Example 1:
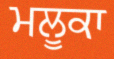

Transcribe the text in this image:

ਮਲੂਕਾ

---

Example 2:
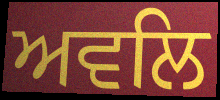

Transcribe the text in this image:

ਅਵਲਿ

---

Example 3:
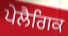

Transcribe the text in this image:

ਪੇਲੈਗਿਕ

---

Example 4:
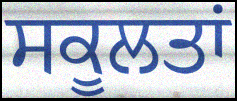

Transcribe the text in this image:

ਸਕੂਲਤਾਂ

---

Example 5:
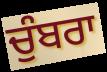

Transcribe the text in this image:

ਚੁੰਬਰਾ